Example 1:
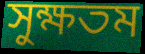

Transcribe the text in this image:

সুক্ষতম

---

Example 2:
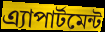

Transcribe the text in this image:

এ্যাপার্টমেন্ট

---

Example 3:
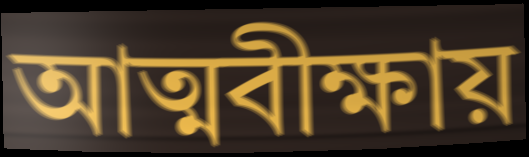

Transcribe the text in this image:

আত্মবীক্ষায়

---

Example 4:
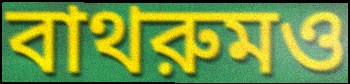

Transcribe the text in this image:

বাথরুমও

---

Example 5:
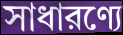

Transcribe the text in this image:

সাধারণ্যে